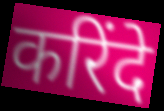
करिंदे